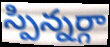
స్పిన్నర్గా